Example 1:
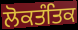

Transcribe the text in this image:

ਲੋਕਤੰਤਿਕ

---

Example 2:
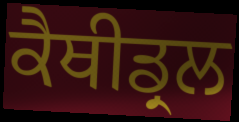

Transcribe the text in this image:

ਕੈਥੀਡ੍ਰਲ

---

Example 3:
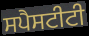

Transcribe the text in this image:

ਸਪੈਸਟੀਟੀ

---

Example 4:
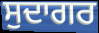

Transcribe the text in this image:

ਸੁਦਾਗਰ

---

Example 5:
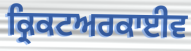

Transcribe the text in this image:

ਕ੍ਰਿਕਟਅਰਕਾਈਵ